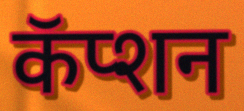
कॅप्शन